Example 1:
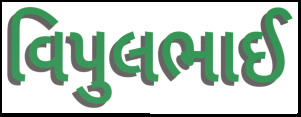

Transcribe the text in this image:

વિપુલભાઈ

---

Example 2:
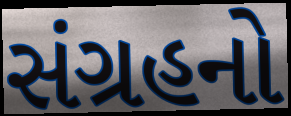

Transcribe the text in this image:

સંગ્રહનો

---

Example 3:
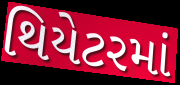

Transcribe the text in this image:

થિયેટરમાં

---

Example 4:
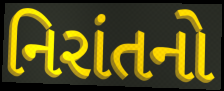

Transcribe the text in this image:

નિરાંતનો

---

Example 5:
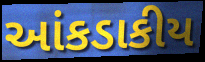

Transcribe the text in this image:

આંકડાકીય